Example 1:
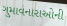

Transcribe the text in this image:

ગુમાવનારાઓની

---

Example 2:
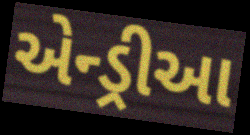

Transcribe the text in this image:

એન્ડ્રીઆ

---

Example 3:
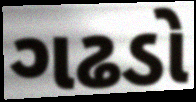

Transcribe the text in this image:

ગઢડો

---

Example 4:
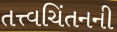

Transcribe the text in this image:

તત્ત્વચિંતનની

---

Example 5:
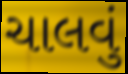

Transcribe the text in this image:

ચાલવું